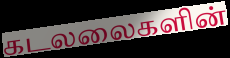
கடலலைகளின்